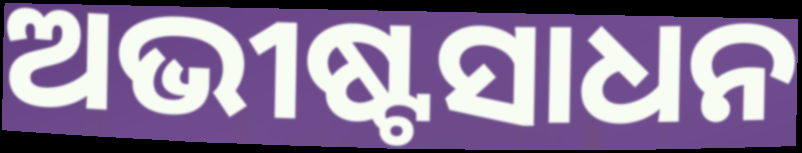
ଅଭୀଷ୍ଟସାଧନ